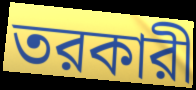
তরকারী